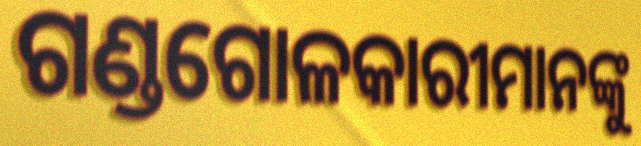
ଗଣ୍ଡଗୋଳକାରୀମାନଙ୍କୁ